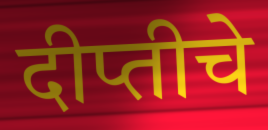
दीप्तीचे